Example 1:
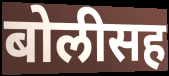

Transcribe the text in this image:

बोलीसह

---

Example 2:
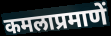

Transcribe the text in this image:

कमलाप्रमाणें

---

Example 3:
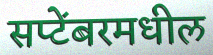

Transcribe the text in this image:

सप्टेंबरमधील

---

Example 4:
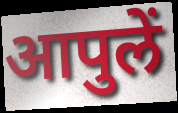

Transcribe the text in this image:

आपुलें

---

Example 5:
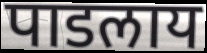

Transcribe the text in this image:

पाडलाय